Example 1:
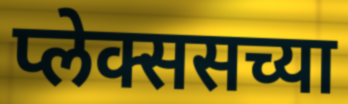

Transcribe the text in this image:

प्लेक्ससच्या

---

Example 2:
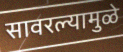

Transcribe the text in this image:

सावरल्यामुळे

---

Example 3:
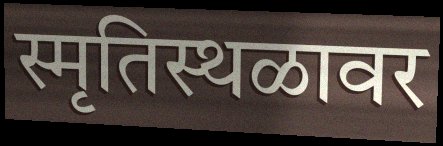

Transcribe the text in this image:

स्मृतिस्थळावर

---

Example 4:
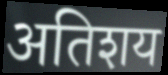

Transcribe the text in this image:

अतिशय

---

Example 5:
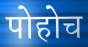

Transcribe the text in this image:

पोहोच